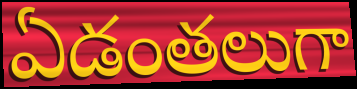
ఏడంతలుగా